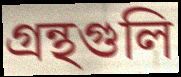
গ্রন্থগুলি